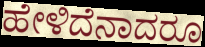
ಹೇಳಿದೆನಾದರೂ